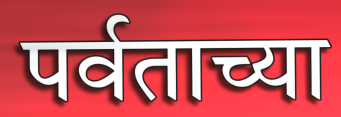
पर्वताच्या